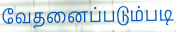
வேதனைப்படும்படி